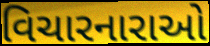
વિચારનારાઓ